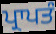
ਪ੍ਰਾਪਤੰ